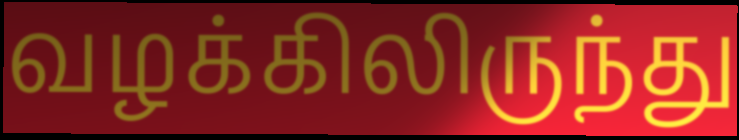
வழக்கிலிருந்து